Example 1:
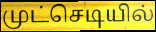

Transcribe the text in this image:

முட்செடியில்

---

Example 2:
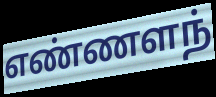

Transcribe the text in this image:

எண்ணளந்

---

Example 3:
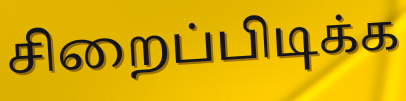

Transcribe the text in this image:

சிறைப்பிடிக்க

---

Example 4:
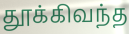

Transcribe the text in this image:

தூக்கிவந்த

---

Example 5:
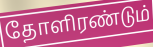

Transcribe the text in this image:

தோளிரண்டும்